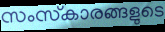
സംസ്‌കാരങ്ങളുടെ